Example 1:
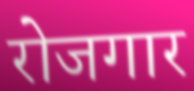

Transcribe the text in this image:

रोजगार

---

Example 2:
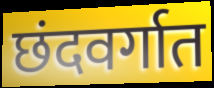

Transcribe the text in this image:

छंदवर्गात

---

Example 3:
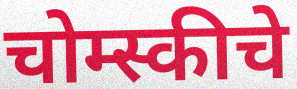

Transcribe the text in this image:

चोम्स्कीचे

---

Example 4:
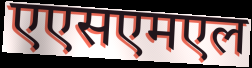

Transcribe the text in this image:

एएसएमएल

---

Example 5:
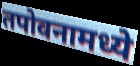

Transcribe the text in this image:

तपोवनामध्ये